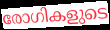
രോഗികളുടെ